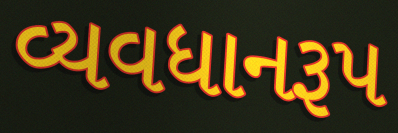
વ્યવધાનરૂપ